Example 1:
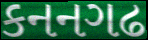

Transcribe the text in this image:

કનનગઢ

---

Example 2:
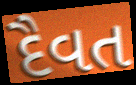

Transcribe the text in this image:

દૈવત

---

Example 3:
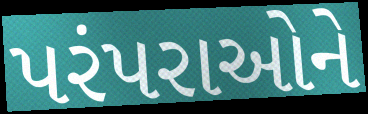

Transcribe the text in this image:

પરંપરાઓને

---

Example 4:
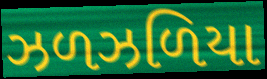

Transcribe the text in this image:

ઝળઝળિયા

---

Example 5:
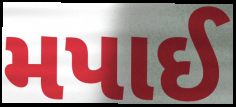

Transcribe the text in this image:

મપાઈ